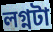
লগ্নটা